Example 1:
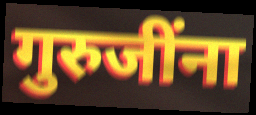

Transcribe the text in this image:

गुरुजींना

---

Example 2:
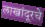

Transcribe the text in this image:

लाखांदूरचे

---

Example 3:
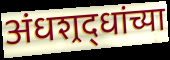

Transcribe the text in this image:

अंधश्रद्धांच्या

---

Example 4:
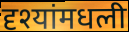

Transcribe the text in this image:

दृश्यांमधली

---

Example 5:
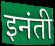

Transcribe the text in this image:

इनंती